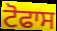
ਟੋਫਾਸ